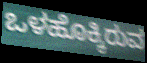
ಒಳಹೊಕ್ಕಿರುವ